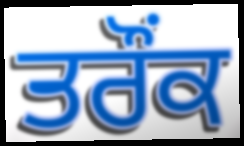
ਤਰੌਂਕ